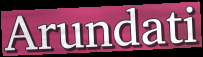
Arundati